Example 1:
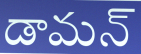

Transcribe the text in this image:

డామన్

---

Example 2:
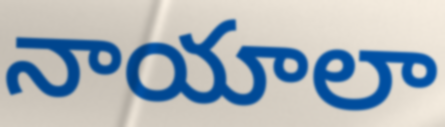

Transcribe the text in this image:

నాయాలా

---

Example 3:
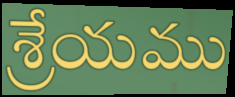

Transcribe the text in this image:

శ్రేయము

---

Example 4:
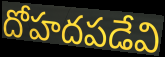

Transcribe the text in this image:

దోహదపడేవి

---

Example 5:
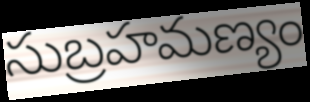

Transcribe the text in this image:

సుబ్రహమణ్యం